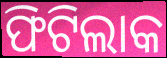
ଫିଟିଲାକ